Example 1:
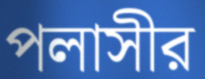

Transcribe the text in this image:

পলাসীর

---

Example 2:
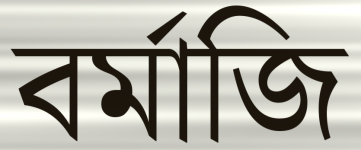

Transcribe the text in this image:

বর্মাজি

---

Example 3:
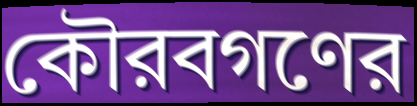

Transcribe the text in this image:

কৌরবগণের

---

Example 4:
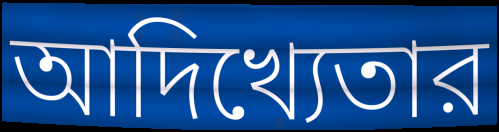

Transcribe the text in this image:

আদিখ্যেতার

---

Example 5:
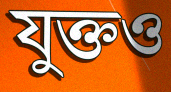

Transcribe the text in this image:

যুক্তও